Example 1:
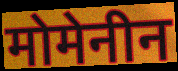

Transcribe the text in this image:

मोमेनीन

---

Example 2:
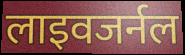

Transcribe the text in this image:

लाइवजर्नल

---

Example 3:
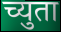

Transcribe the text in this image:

च्युता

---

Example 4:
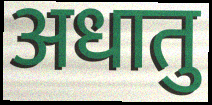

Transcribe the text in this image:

अधातु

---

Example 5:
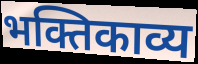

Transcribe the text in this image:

भक्तिकाव्य